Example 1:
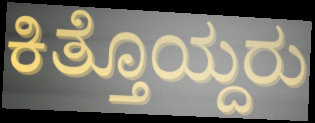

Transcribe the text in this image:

ಕಿತ್ತೊಯ್ದರು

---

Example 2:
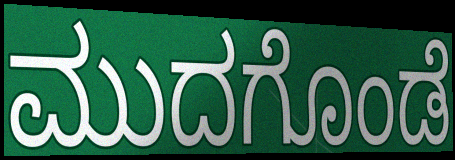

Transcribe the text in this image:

ಮುದಗೊಂಡೆ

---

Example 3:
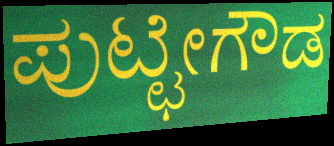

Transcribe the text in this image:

ಪುಟ್ಟೇಗೌಡ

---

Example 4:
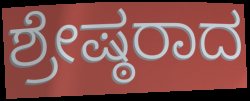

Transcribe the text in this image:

ಶ್ರೇಷ್ಠರಾದ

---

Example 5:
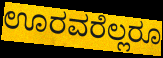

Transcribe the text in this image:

ಊರವರೆಲ್ಲರೂ